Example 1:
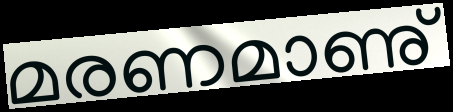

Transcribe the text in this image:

മരണമാണു്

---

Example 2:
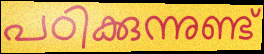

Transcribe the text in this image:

പഠിക്കുന്നുണ്ട്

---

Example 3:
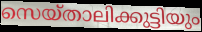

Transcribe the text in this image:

സെയ്താലിക്കുട്ടിയും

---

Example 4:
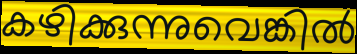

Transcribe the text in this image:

കഴിക്കുന്നുവെങ്കിൽ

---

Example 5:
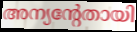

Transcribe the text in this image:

അന്യന്റേതായി